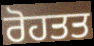
ਰੋਹਤਤ